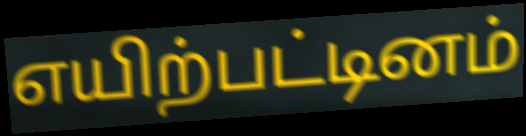
எயிற்பட்டினம்